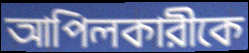
আপিলকারীকে